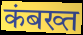
कंबख्त